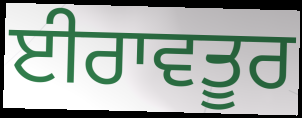
ਈਰਾਵਤੂਰ